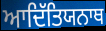
ਆਦਿੱਤਿਯਨਾਥ